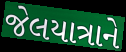
જેલયાત્રાને